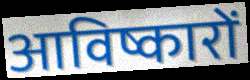
आविष्‍कारों